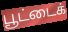
பூட்டைக்